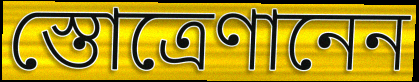
স্তোত্রেণানেন